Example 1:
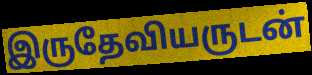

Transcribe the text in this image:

இருதேவியருடன்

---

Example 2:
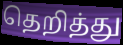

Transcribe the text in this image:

தெறித்து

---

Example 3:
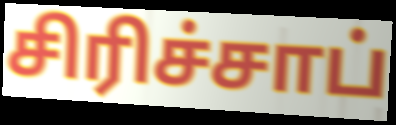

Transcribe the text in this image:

சிரிச்சாப்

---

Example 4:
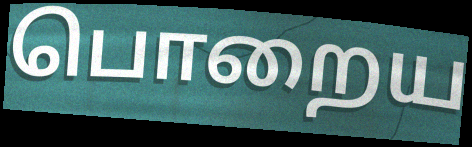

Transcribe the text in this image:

பொறைய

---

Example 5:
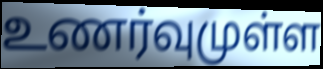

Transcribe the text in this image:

உணர்வுமுள்ள